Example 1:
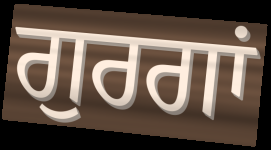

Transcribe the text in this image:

ਗੁਰਗਾਂ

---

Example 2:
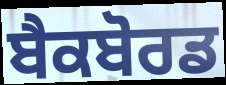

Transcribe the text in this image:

ਬੈਕਬੋਰਡ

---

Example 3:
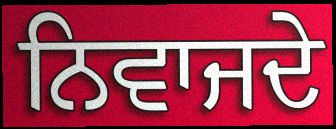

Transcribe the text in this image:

ਨਿਵਾਜਦੇ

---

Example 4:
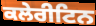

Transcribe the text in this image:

ਕਲੇਰੀਟਿਨ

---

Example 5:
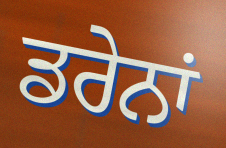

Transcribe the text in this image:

ਡਰੇਨਾਂ